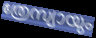
ത്രേസ്യായും